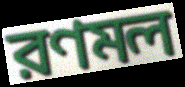
রণমল